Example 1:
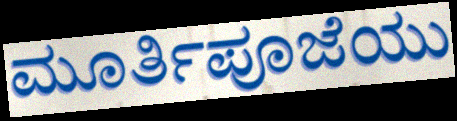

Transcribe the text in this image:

ಮೂರ್ತಿಪೂಜೆಯು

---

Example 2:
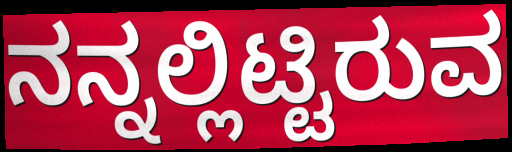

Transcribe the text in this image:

ನನ್ನಲ್ಲಿಟ್ಟಿರುವ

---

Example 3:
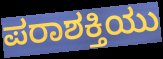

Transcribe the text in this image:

ಪರಾಶಕ್ತಿಯು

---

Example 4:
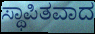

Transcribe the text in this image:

ಸ್ಥಾಪಿತವಾದ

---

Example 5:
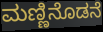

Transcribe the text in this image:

ಮಣ್ಣಿನೊಡನೆ